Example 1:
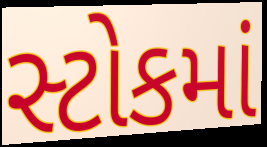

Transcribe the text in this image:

સ્ટોકમાં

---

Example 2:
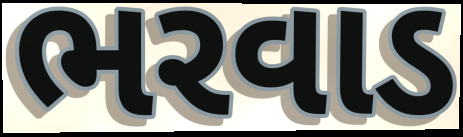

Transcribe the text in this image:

ભરવાડ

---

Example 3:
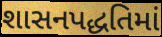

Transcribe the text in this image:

શાસનપદ્ધતિમાં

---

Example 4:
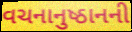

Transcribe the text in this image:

વચનાનુષ્ઠાનની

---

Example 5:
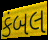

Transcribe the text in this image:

કંબલ